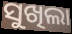
ସୁଖିଲା